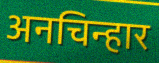
अनचिन्हार